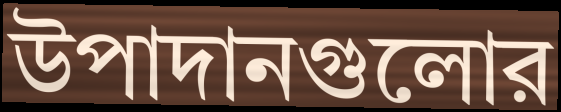
উপাদানগুলোর